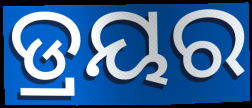
ଡ୍ରୟର